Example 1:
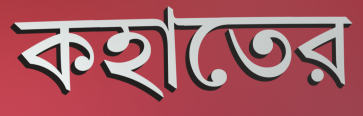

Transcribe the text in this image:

কহাতের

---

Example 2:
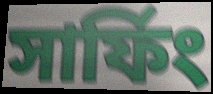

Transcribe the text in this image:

সার্ফিং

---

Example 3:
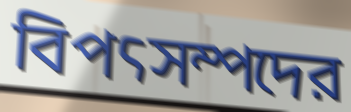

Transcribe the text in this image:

বিপৎসম্পদের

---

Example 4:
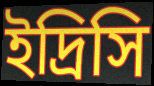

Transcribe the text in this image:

ইদ্রিসি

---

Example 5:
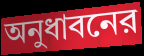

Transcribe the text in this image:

অনুধাবনের